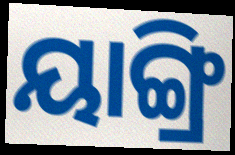
ୟାଙ୍ଗ୍ରି